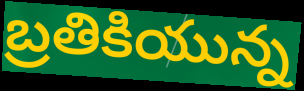
బ్రతికియున్న